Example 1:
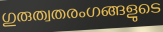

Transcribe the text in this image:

ഗുരുത്വതരംഗങ്ങളുടെ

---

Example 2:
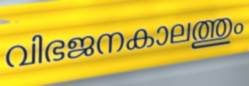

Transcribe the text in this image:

വിഭജനകാലത്തും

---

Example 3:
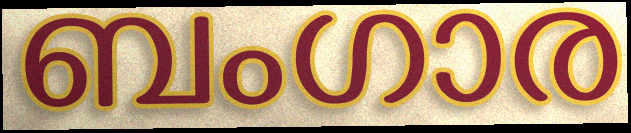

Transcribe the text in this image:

ബംഗാര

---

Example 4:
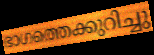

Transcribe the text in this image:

ഭാഗത്തെക്കുറിച്ചു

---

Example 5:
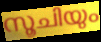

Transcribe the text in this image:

സൂചിയും